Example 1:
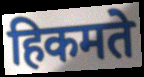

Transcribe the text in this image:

हिकमते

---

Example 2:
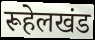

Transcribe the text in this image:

रूहेलखंड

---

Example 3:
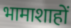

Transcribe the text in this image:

भामाशाहों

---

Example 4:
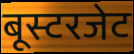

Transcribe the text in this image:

बूस्टरजेट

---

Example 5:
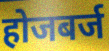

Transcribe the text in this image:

होजबर्ज